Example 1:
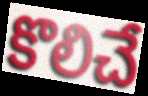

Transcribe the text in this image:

కొలిచే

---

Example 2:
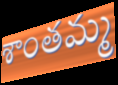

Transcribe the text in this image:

శాంతమ్మ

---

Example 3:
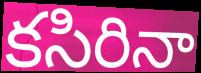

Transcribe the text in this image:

కసిరినా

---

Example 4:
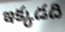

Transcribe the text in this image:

ఇక్కడది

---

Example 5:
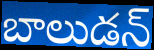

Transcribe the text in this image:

బాలుడన్